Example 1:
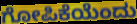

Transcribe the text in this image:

ಗೋಪಿಕೆಯೆಂದು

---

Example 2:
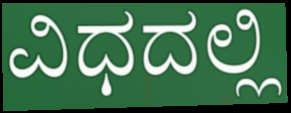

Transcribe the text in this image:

ವಿಧದಲ್ಲಿ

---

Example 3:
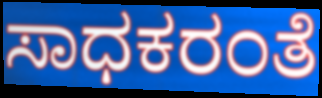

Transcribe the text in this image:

ಸಾಧಕರಂತೆ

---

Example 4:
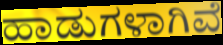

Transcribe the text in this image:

ಹಾಡುಗಳಾಗಿವೆ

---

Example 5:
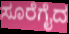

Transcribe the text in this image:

ಸೂರೆಗೈದ